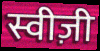
स्वीज़ी